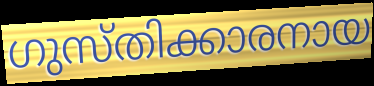
ഗുസ്തിക്കാരനായ